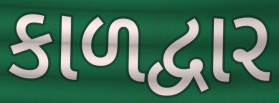
કાળદ્વાર